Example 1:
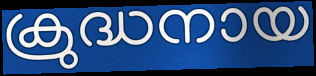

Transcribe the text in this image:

ക്രുദ്ധനായ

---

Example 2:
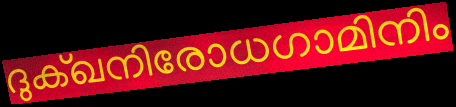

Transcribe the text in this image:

ദുക്ഖനിരോധഗാമിനിം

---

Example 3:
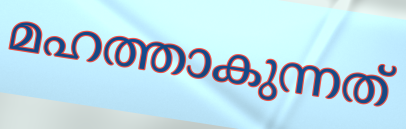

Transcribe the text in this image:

മഹത്താകുന്നത്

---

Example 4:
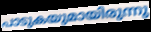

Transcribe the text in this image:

പാടുകയുമായിരുന്നു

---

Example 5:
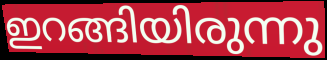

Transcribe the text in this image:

ഇറങ്ങിയിരുന്നു